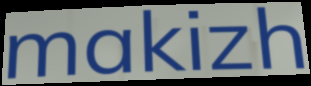
makizh